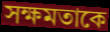
সক্ষমতাকে